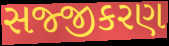
સજ્જીકરણ